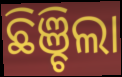
ଛିଞ୍ଚିଲା